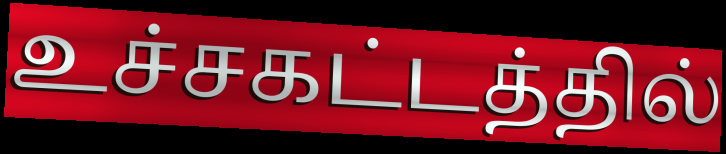
உச்சகட்டத்தில்